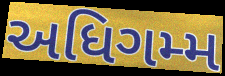
અધિગમ્મ